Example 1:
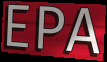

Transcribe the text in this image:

EPA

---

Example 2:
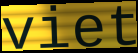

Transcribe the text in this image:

viet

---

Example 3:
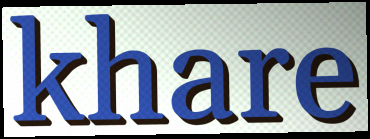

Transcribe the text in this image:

khare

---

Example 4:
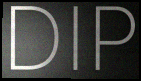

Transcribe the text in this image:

DIP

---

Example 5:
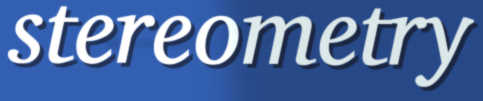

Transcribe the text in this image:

stereometry